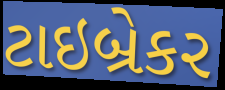
ટાઇબ્રેકર